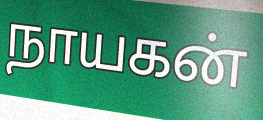
நாயகன்